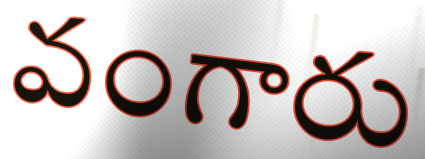
వంగారు